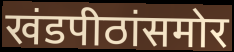
खंडपीठांसमोर